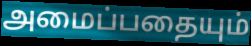
அமைப்பதையும்